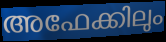
അഫേക്കിലും